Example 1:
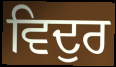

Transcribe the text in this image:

ਵਿਦੁਰ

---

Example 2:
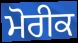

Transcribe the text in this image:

ਮੋਰੀਕ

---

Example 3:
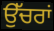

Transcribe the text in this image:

ਉੱਚਰਾਂ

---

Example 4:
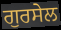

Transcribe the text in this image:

ਗੁਰਸੇਲ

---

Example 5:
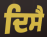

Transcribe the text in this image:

ਦਿਸੈ